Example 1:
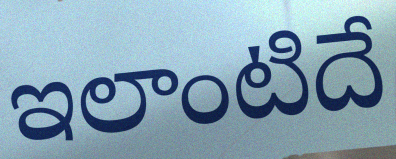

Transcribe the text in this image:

ఇలాంటిదే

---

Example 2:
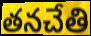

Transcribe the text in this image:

తనచేతి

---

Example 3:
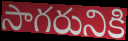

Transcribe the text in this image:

సాగరునికి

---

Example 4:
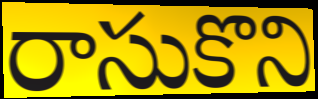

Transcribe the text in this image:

రాసుకొని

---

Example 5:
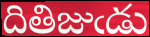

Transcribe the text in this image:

దితిజుఁడు